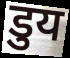
डुय